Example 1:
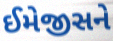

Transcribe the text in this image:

ઈમેજીસને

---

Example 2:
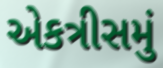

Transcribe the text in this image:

એકત્રીસમું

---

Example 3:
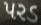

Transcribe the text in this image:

પરડ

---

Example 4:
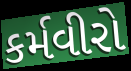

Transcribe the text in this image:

કર્મવીરો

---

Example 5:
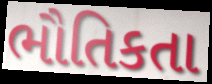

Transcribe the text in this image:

ભૌતિકતા